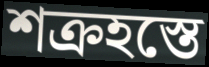
শক্রহস্তে